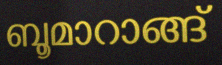
ബൂമാറാങ്ങ്